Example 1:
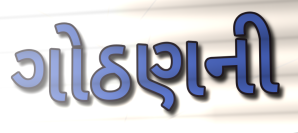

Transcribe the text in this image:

ગોઠણની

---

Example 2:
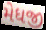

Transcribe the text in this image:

મેધજી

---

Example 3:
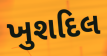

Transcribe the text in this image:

ખુશદિલ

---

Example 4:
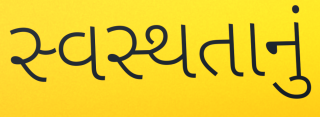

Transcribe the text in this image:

સ્વસ્થતાનું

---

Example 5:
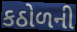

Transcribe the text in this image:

કઠોળની